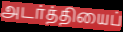
அடர்த்தியைப்